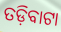
ତଡ଼ିବାଟା